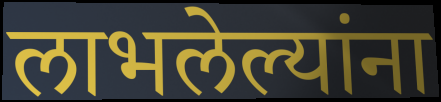
लाभलेल्यांना